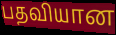
பதவியான